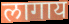
लागाय